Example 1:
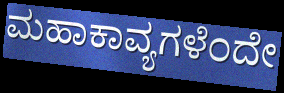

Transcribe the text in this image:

ಮಹಾಕಾವ್ಯಗಳೆಂದೇ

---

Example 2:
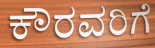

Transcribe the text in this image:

ಕೌರವರಿಗೆ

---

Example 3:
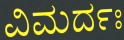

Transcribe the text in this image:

ವಿಮರ್ದಃ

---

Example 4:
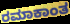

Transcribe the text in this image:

ರಮಾಕಾಂತ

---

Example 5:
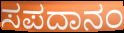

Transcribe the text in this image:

ಸಪದಾನಂ